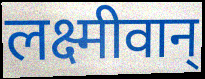
लक्ष्मीवान्